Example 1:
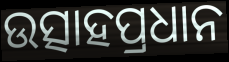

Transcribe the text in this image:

ଉତ୍ସାହପ୍ରଧାନ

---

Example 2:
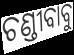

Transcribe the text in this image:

ଚଣ୍ଡୀବାବୁ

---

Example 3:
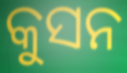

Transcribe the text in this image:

କୁସନ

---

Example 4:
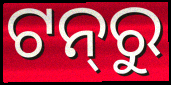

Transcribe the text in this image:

ଟନ୍‍ରୁ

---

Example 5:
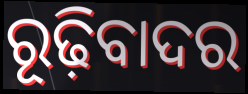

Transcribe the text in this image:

ରୂଢ଼ିବାଦର